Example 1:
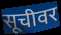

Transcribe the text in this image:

सूचीवर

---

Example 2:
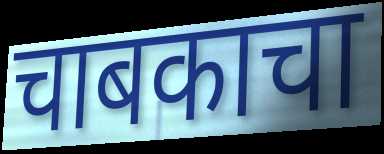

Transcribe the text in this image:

चाबकाचा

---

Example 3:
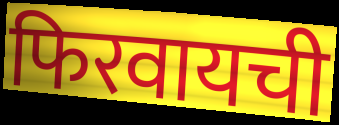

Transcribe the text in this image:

फिरवायची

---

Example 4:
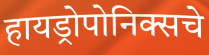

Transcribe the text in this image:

हायड्रोपोनिक्सचे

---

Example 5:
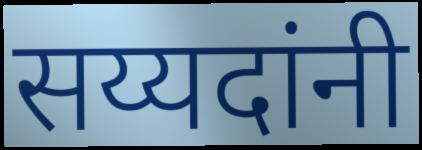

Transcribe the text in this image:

सय्यदांनी